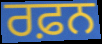
ਰਫ਼ਨ